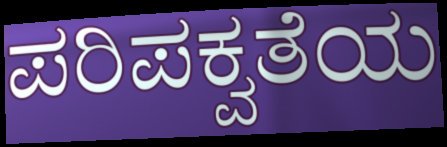
ಪರಿಪಕ್ವತೆಯ